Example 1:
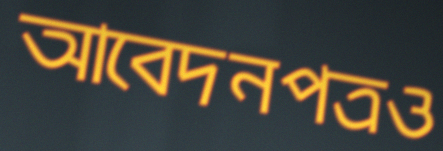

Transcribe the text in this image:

আবেদনপত্রও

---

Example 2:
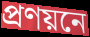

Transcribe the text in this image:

প্রণয়নে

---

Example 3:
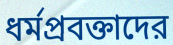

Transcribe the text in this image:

ধর্মপ্রবক্তাদের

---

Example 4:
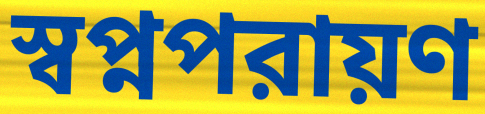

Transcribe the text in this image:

স্বপ্নপরায়ণ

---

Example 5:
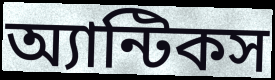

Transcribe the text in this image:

অ্যান্টিকস